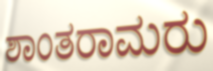
ಶಾಂತರಾಮರು